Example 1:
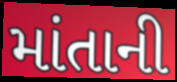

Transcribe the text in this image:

માંતાની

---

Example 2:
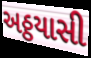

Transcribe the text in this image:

અઠ્ઠયાસી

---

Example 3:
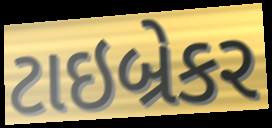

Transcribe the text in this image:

ટાઇબ્રેકર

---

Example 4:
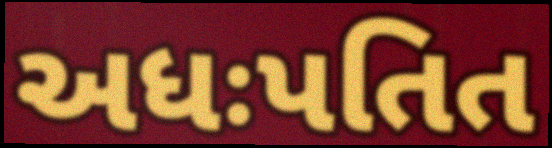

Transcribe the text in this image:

અધઃપતિત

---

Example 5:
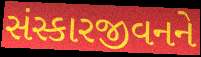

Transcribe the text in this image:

સંસ્કારજીવનને